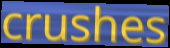
crushes